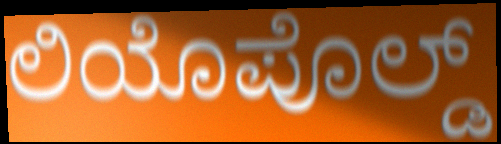
ಲಿಯೊಪೊಲ್ಡ್